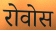
रोवोस